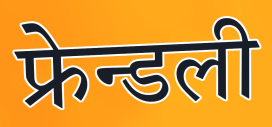
फ्रेन्डली